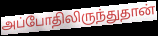
அப்போதிலிருந்துதான்